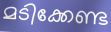
മടിക്കേണ്ട